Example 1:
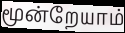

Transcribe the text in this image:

மூன்றேயாம்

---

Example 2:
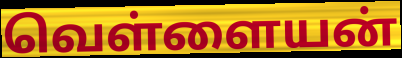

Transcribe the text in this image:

வெள்ளையன்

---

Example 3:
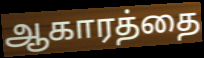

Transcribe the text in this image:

ஆகாரத்தை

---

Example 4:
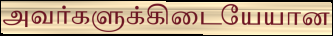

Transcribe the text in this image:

அவர்களுக்கிடையேயான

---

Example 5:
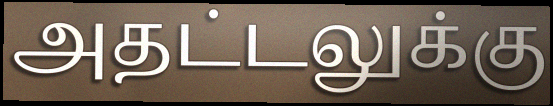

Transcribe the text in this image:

அதட்டலுக்கு